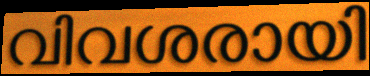
വിവശരായി